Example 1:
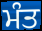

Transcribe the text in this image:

ਮੰਤ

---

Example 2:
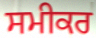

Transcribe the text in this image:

ਸਮੀਕਰ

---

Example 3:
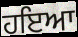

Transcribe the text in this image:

ਹਇਆ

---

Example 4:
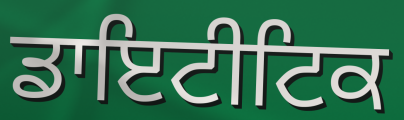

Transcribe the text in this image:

ਡਾਇਟੀਟਿਕ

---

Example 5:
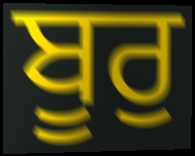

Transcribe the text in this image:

ਬੂਰੁ